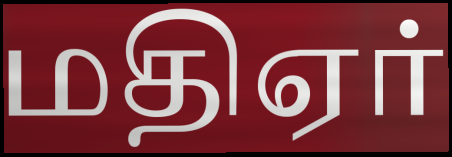
மதிஏர்